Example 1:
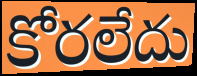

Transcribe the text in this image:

కోరలేదు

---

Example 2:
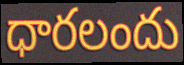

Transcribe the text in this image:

ధారలందు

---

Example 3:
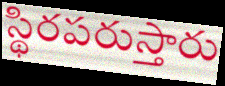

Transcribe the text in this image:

స్థిరపరుస్తారు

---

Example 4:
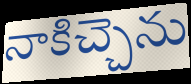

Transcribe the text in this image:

నాకిచ్చెను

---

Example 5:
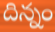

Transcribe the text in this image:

దిన్నం